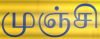
முஞ்சி